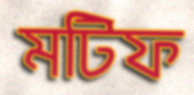
মটিফ